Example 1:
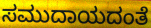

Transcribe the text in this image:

ಸಮುದಾಯದಂತೆ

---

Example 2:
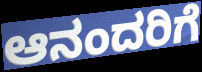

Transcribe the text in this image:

ಆನಂದರಿಗೆ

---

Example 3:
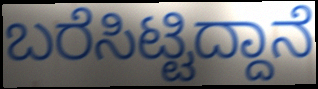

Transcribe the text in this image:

ಬರೆಸಿಟ್ಟಿದ್ದಾನೆ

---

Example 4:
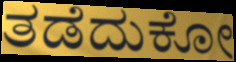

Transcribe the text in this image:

ತಡೆದುಕೋ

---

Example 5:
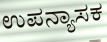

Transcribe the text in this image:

ಉಪನ್ಯಾಸಕ